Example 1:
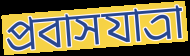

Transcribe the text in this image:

প্রবাসযাত্রা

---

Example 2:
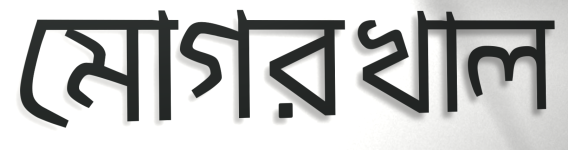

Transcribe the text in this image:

মোগরখাল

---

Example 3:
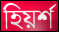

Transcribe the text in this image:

হিয়র্শ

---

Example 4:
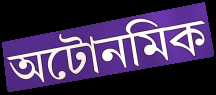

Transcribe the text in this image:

অটোনমিক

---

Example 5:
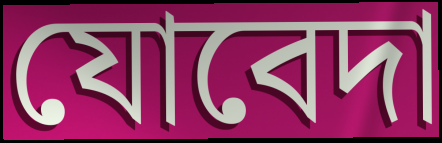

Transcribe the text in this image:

যোবেদা